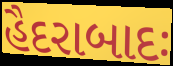
હૈદરાબાદઃ